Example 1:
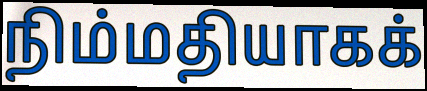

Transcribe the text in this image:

நிம்மதியாகக்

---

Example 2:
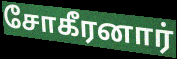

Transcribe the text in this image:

சோகீரனார்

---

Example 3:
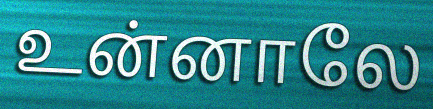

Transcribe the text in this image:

உன்னாலே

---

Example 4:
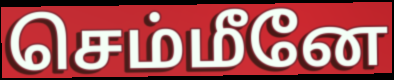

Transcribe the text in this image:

செம்மீனே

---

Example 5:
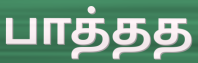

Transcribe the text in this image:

பாத்தத